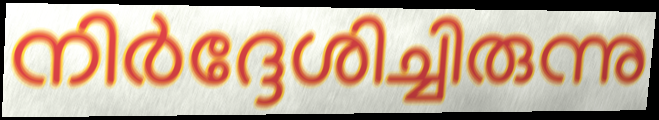
നിർദ്ദേശിച്ചിരുന്നു